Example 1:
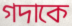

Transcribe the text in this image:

গদাকে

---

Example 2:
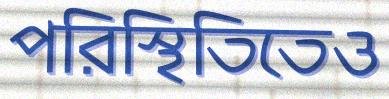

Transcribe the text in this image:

পরিস্থিতিতেও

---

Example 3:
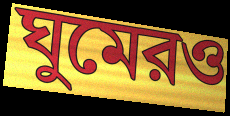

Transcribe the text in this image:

ঘুমেরও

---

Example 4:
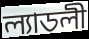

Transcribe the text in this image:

ল্যাডলী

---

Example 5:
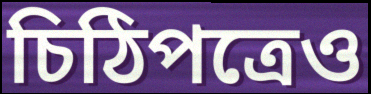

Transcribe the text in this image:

চিঠিপত্রেও